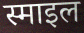
स्माइल